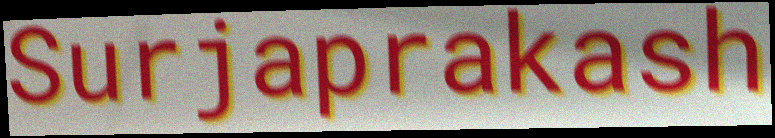
Surjaprakash